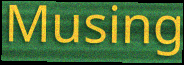
Musing